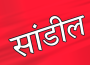
सांडील